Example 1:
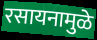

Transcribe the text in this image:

रसायनामुळे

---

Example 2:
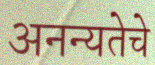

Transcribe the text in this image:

अनन्यतेचे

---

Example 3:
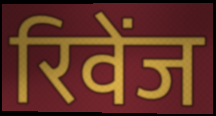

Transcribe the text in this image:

रिवेंज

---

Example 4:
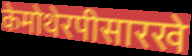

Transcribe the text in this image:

केमोथेरपीसारखे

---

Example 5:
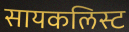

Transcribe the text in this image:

सायकलिस्ट